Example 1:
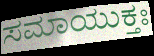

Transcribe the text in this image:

ಸಮಾಯುಕ್ತಃ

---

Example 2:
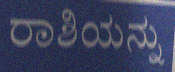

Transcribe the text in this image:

ರಾಶಿಯನ್ನು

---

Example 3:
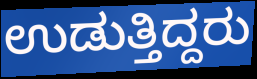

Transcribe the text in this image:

ಉಡುತ್ತಿದ್ದರು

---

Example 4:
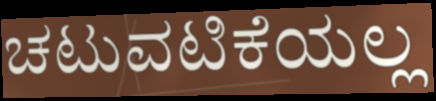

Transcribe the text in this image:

ಚಟುವಟಿಕೆಯಲ್ಲ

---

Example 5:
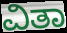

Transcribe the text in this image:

ವಿತಾ